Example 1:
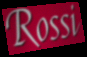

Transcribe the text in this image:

Rossi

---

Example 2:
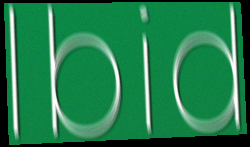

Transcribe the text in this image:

Ibid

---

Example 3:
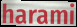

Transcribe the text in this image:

harami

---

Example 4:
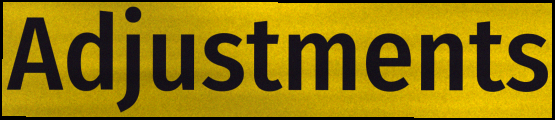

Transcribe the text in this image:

Adjustments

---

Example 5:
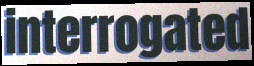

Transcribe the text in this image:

interrogated